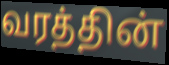
வரத்தின்